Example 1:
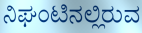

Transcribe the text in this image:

ನಿಘಂಟಿನಲ್ಲಿರುವ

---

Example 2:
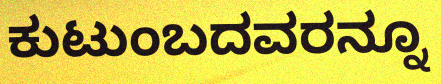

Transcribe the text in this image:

ಕುಟುಂಬದವರನ್ನೂ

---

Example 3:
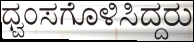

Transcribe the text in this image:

ಧ್ವಂಸಗೊಳಿಸಿದ್ದರು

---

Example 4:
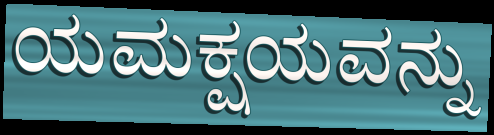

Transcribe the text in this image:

ಯಮಕ್ಷಯವನ್ನು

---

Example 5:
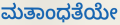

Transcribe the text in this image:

ಮತಾಂಧತೆಯೇ